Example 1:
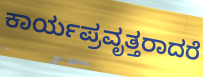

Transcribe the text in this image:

ಕಾರ್ಯಪ್ರವೃತ್ತರಾದರೆ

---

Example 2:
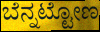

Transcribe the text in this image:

ಬೆನ್ನಟ್ಟೋಣ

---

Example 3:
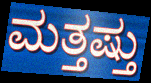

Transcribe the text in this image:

ಮತ್ತಷ್ತು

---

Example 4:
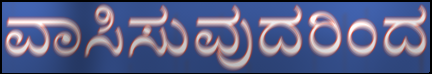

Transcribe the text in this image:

ವಾಸಿಸುವುದರಿಂದ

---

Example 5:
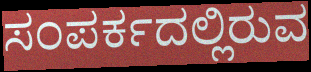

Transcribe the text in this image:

ಸಂಪರ್ಕದಲ್ಲಿರುವ